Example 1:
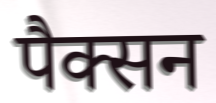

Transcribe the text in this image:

पैक्सन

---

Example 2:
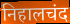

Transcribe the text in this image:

निहालचंद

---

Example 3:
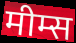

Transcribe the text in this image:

मीम्‍स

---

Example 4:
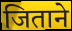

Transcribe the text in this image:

जिताने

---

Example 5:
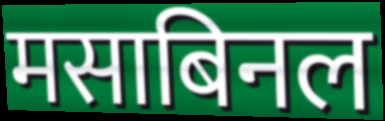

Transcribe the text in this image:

मसाबिनल